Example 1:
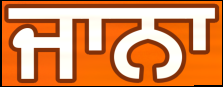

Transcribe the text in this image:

ਜਾਨਾ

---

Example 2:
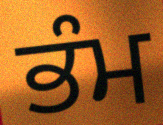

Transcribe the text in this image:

ਭੰਮ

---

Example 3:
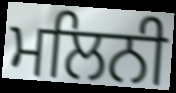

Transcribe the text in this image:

ਮਲਿਨੀ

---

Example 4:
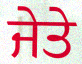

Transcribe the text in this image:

ਜੇਤੇ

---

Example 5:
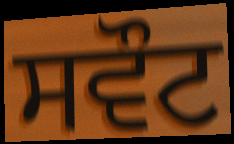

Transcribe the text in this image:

ਸਵੌਟ